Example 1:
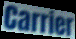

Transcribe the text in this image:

Carrier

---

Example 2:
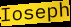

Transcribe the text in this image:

Ioseph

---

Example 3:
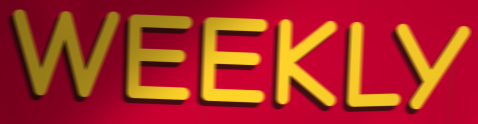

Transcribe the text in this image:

WEEKLY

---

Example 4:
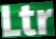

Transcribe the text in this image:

Ltr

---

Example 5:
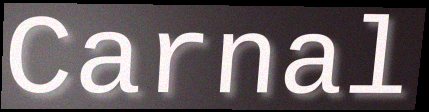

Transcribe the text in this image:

Carnal